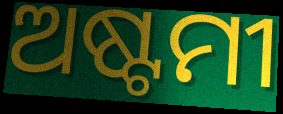
ଅଷ୍ଟମୀ